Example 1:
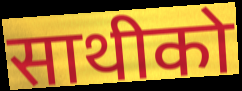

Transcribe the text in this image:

साथीको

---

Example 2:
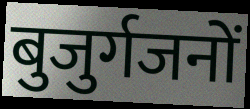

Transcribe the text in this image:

बुजुर्गजनों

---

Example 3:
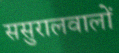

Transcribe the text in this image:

ससुरालवालों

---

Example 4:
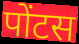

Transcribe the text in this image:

पोंटस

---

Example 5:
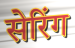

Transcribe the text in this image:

सेरिंग